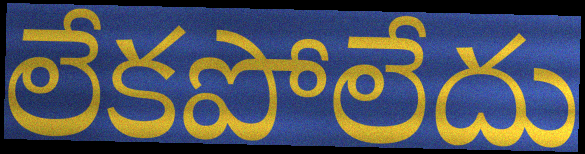
లేకపోలేదు